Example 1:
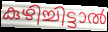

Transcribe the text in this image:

കുഴിച്ചിട്ടാൽ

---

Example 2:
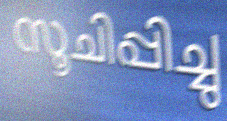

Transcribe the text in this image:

സൂചിപ്പിച്ചു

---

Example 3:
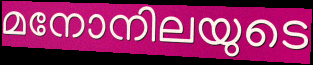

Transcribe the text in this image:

മനോനിലയുടെ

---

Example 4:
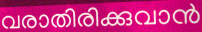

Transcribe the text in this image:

വരാതിരിക്കുവാൻ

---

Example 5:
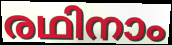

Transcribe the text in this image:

രഥിനാം